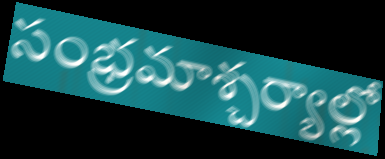
సంభ్రమాశ్చర్యాల్లో